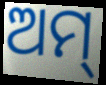
ଅମ୍